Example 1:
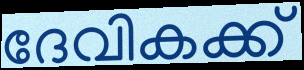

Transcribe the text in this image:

ദേവികക്ക്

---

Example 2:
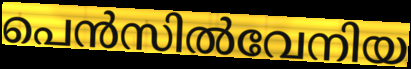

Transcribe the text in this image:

പെൻസിൽവേനിയ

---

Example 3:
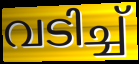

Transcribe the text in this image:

വടിച്ച്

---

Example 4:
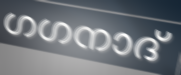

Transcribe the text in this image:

ഗഗനാദ്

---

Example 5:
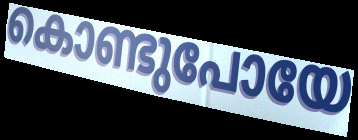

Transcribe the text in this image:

കൊണ്ടുപോയേ